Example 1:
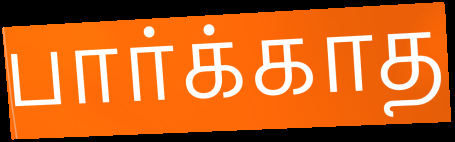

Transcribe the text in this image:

பார்க்காத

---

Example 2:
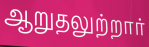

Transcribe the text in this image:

ஆறுதலுற்றார்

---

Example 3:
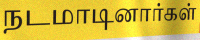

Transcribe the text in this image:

நடமாடினார்கள்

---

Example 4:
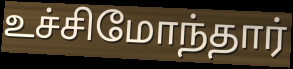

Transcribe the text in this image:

உச்சிமோந்தார்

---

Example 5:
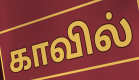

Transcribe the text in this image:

காவில்